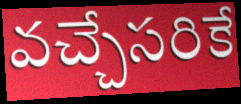
వచ్చేసరికే